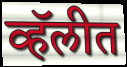
व्हॅलीत